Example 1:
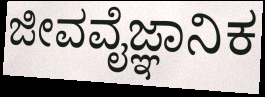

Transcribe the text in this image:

ಜೀವವೈಜ್ಞಾನಿಕ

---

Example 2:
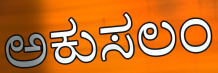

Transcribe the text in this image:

ಅಕುಸಲಂ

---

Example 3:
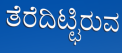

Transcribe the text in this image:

ತೆರೆದಿಟ್ಟಿರುವ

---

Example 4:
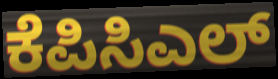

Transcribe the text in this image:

ಕೆಪಿಸಿಎಲ್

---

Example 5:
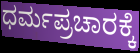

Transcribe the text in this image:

ಧರ್ಮಪ್ರಚಾರಕ್ಕೆ